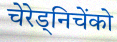
चेरेड्निचेंको